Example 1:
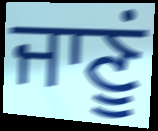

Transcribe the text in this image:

ਜਾਣੂਂ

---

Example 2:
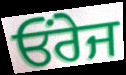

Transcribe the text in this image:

ਓਂਰੇਜ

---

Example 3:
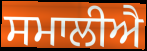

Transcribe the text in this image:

ਸਮਾਲੀਐ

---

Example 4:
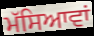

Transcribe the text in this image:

ਮੱਸਿਆਵਾਂ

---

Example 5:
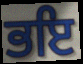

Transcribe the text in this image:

ਭਇ